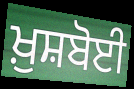
ਖ਼ੁਸ਼ਬੋਈ